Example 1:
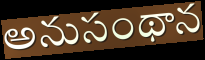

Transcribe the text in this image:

అనుసంథాన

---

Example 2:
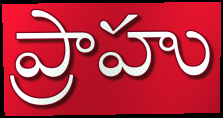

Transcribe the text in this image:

ప్రాహు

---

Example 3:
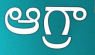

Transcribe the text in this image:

ఆగ్రా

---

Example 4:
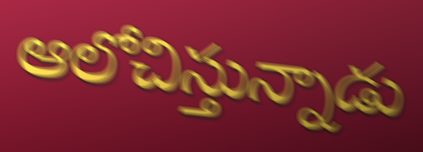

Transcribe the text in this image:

ఆలోచిస్తున్నాడు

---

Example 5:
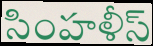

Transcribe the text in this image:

సింహళీస్